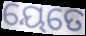
ୟେତେ